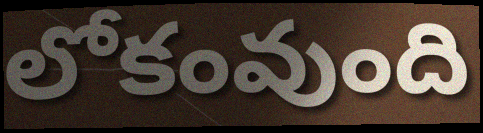
లోకంవుంది